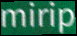
mirip